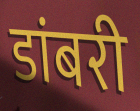
डांबरी